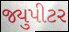
જ્યુપીટર